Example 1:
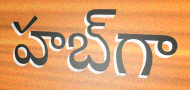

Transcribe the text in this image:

హబ్‌గా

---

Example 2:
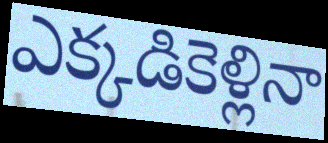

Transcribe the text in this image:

ఎక్కడికెళ్లినా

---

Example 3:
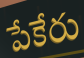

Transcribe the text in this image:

పేకేరు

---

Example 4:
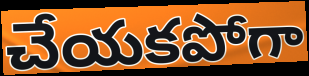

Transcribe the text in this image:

చేయకపోగా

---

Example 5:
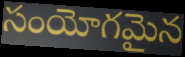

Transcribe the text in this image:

సంయోగమైన